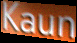
Kaun